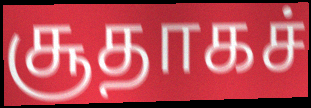
சூதாகச்